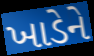
ખાડેને